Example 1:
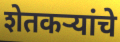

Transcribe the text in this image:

शेतकऱ्यांचे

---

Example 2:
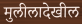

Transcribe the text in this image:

मुलीलादेखील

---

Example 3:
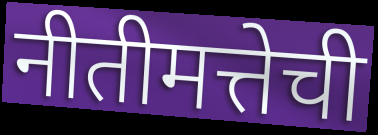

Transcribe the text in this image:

नीतीमत्तेची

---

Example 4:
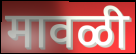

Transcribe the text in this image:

मावळी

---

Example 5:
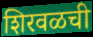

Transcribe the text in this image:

शिरवळची